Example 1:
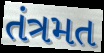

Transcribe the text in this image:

તંત્રમત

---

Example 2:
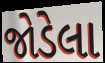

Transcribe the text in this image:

જોડેલા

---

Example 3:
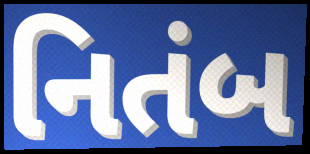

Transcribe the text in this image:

નિતંબ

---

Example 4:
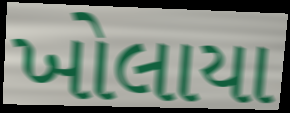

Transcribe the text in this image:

ખોલાયા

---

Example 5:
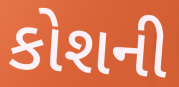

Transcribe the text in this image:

કોશની